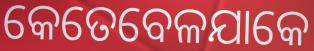
କେତେବେଳଯାକେ